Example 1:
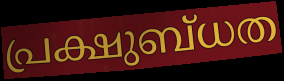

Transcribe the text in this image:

പ്രക്ഷുബ്ധത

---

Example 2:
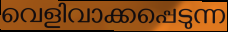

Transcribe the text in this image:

വെളിവാക്കപ്പെടുന്ന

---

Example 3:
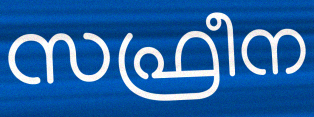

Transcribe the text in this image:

സഫ്രീന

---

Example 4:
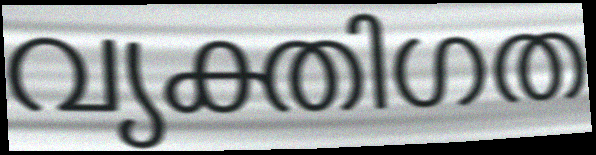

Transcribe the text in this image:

വ്യക്തിഗത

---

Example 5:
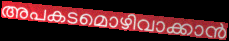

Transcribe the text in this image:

അപകടമൊഴിവാക്കാൻ